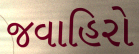
જવાહિરો